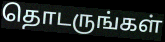
தொடருங்கள்